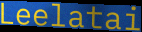
Leelatai